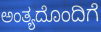
ಅಂತ್ಯದೊಂದಿಗೆ